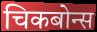
चिकबोन्स